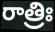
రాత్రిః